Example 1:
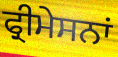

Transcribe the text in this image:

ਫ੍ਰੀਮੇਸਨਾਂ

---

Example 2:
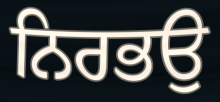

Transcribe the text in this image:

ਨਿਰਭਉ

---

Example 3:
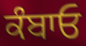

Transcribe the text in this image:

ਕੰਬਾਓ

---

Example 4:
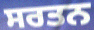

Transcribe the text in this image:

ਸਰਤਨ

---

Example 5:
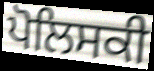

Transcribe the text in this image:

ਪੋਲਿਸਕੀ